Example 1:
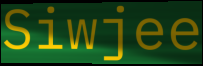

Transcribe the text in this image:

Siwjee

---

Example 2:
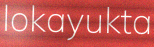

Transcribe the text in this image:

lokayukta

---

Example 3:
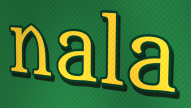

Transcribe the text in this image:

nala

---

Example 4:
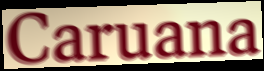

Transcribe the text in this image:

Caruana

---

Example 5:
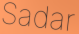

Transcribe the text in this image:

Sadar